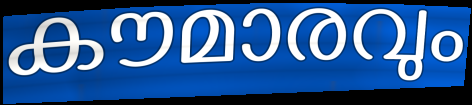
കൗമാരവും